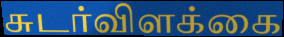
சுடர்விளக்கை